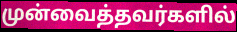
முன்வைத்தவர்களில்